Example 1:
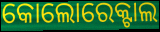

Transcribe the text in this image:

କୋଲୋରେକ୍ଟାଲ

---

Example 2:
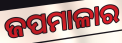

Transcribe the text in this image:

ଜପମାଳାର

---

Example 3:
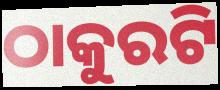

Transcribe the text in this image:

ଠାକୁରଟି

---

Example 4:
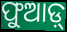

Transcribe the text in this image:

ଫୁଆଡ଼୍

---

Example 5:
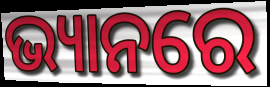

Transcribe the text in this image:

ଭ୍ୟାନରେ